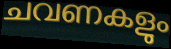
ചവണകളും